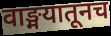
वाङ्मयातूनच